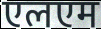
एलएम